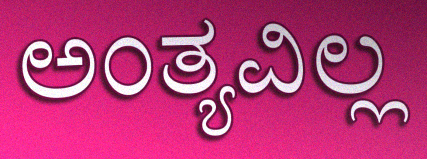
ಅಂತ್ಯವಿಲ್ಲ